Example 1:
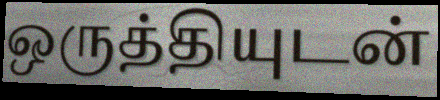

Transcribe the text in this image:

ஒருத்தியுடன்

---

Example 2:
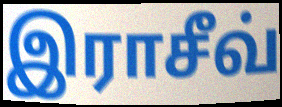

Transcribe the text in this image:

இராசீவ்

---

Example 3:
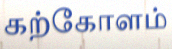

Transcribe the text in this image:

கற்கோளம்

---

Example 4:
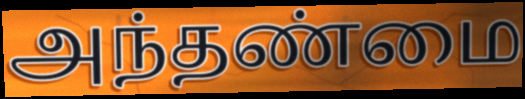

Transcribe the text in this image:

அந்தண்மை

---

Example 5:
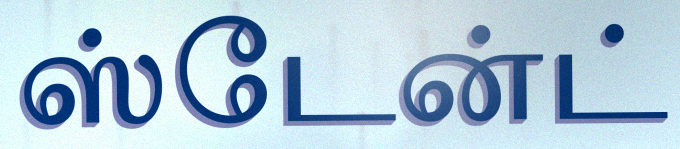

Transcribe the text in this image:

ஸ்டேன்ட்